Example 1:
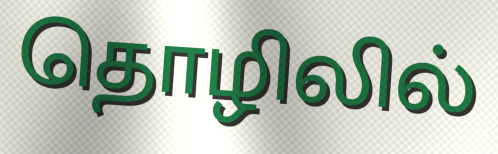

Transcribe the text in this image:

தொழிலில்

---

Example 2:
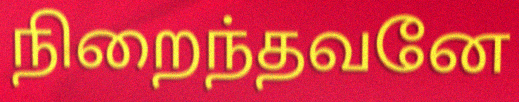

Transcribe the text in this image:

நிறைந்தவனே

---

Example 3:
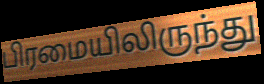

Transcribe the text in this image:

பிரமையிலிருந்து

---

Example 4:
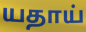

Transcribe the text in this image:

யதாய்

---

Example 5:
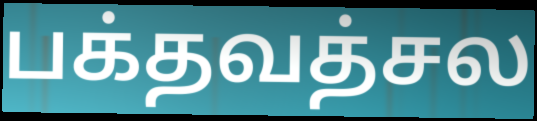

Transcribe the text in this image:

பக்தவத்சல